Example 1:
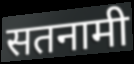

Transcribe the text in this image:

सतनामी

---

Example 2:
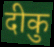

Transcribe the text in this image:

दीकु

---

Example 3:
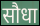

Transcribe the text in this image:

सौधा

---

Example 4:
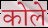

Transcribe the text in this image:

कोले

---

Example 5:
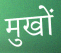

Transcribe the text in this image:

मुखों